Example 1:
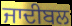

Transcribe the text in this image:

ਜਾਦੀਬਲ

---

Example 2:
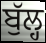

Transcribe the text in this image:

ਬੁੱਲ੍ਹ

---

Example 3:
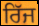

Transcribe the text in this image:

ਰਿੱਜ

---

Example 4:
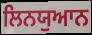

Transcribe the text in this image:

ਲਿਨਯੁਆਨ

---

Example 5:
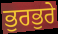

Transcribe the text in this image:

ਭੁਰਭੁਰੇ